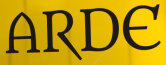
ARDE